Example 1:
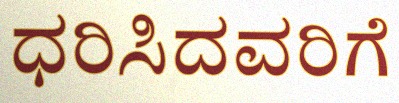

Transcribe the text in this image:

ಧರಿಸಿದವರಿಗೆ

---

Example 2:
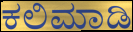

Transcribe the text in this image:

ಕಲಿಮಾಡಿ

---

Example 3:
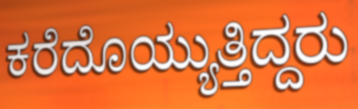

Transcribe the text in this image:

ಕರೆದೊಯ್ಯುತ್ತಿದ್ದರು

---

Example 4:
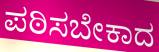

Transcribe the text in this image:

ಪಠಿಸಬೇಕಾದ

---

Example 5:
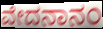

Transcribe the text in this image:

ವೇದನಾನಂ